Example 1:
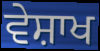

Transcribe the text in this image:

ਵੇਸ਼ਾਖ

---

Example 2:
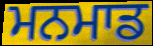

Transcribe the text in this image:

ਮਨਮਾਡ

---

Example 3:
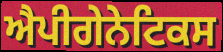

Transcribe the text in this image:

ਐਪੀਗੇਨੇਟਿਕਸ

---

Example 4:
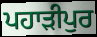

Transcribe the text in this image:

ਪਹਾੜੀਪੁਰ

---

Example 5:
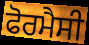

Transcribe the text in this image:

ਫੋਰਮੈਸੀ